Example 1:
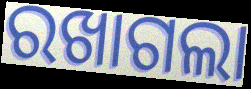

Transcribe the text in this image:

ରଖାଗଲା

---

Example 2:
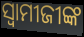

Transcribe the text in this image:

ସ୍ୱାମୀଜୀଙ୍କ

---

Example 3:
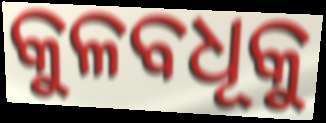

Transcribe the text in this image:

କୁଳବଧୂକୁ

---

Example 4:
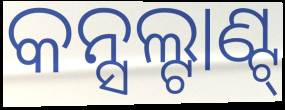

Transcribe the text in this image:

କନ୍ସଲ୍ଟାଣ୍ଟ୍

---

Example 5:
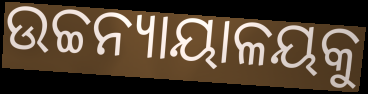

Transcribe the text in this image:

ଉଚ୍ଚନ୍ୟାୟାଳୟକୁ